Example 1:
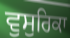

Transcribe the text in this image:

ਵੁਸੁਰਿਕਾ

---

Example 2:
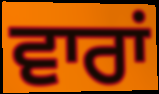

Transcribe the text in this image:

ਵਾਰਾਂ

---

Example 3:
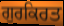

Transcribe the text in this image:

ਗੁਰਕਿਰਤ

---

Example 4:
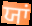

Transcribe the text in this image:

ਯਾਂ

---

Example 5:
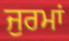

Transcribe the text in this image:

ਜੁਰਮਾਂ